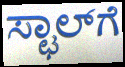
ಸ್ಟಾಲ್‌ಗೆ